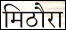
मिठौरा